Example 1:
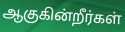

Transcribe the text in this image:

ஆகுகின்றீர்கள்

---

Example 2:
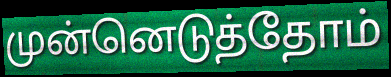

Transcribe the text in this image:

முன்னெடுத்தோம்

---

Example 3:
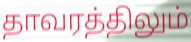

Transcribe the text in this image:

தாவரத்திலும்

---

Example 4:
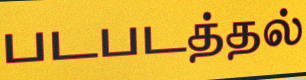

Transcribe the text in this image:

படபடத்தல்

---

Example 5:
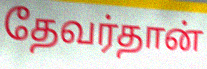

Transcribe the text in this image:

தேவர்தான்